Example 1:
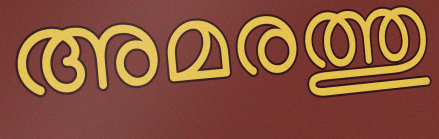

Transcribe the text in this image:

അമരത്തു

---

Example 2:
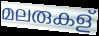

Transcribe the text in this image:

മലരുകള്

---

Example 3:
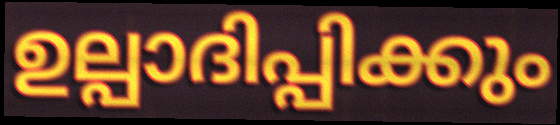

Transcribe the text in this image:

ഉല്പാദിപ്പിക്കും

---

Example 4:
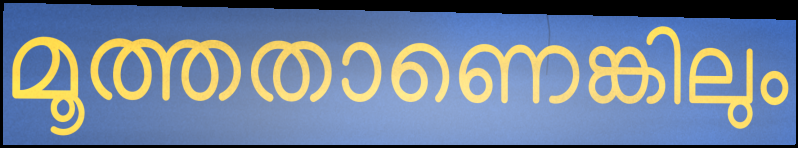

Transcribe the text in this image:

മൂത്തതാണെങ്കിലും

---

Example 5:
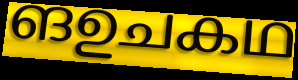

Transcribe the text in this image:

ങഉചകഥ